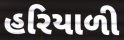
હરિયાળી